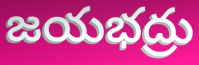
జయభద్రు